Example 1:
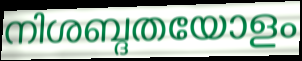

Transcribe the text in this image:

നിശബ്ദതയോളം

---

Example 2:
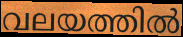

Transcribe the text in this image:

വലയത്തിൽ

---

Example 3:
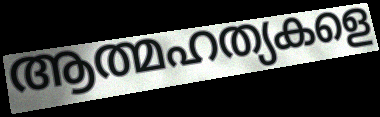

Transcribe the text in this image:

ആത്മഹത്യകളെ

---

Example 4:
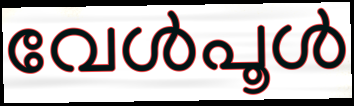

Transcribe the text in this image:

വേൾപൂൾ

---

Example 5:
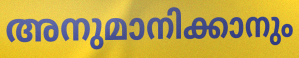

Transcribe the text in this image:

അനുമാനിക്കാനും